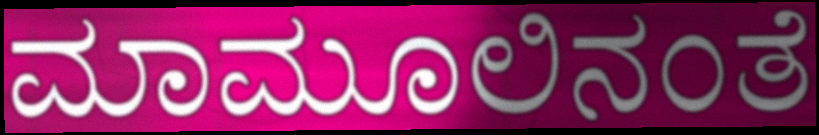
ಮಾಮೂಲಿನಂತೆ